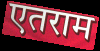
एतराम